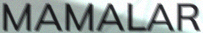
MAMALAR